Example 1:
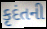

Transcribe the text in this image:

કૃદંતની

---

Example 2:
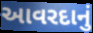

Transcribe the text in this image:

આવરદાનું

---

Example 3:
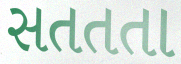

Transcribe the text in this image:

સતતતા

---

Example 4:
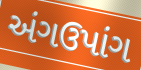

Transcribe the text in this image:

અંગઉપાંગ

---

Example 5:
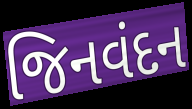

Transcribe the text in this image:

જિનવંદન